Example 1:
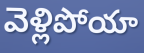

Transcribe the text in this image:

వెళ్లిపోయా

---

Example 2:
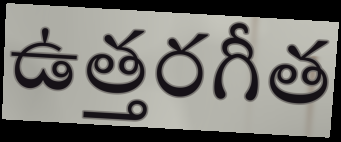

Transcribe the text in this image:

ఉత్తరగీత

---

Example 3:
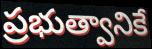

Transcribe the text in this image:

ప్రభుత్వానికే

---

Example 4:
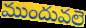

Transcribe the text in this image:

ముందువలె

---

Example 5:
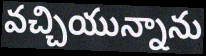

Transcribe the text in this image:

వచ్చియున్నాను